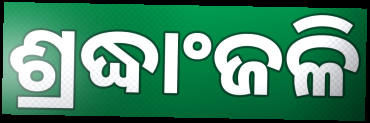
ଶ୍ରଦ୍ଧାଂଜଳି